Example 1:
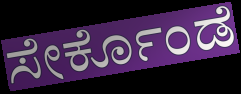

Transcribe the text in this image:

ಸೇರ್ಕೊಂಡೆ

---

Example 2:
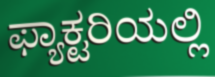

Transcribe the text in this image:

ಫ್ಯಾಕ್ಟರಿಯಲ್ಲಿ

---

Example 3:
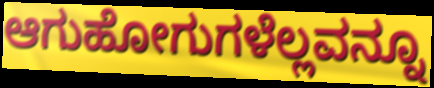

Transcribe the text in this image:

ಆಗುಹೋಗುಗಳೆಲ್ಲವನ್ನೂ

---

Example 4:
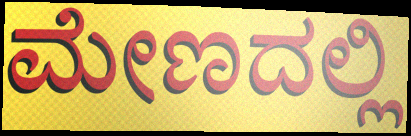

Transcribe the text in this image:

ಮೇಣದಲ್ಲಿ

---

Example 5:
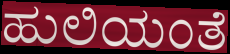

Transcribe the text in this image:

ಹುಲಿಯಂತೆ